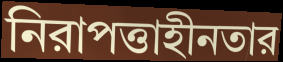
নিরাপত্তাহীনতার